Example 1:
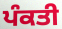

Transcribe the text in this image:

ਪੰਕਤੀ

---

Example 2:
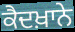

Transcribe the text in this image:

ਕੈਦਖ਼ਾਨੇ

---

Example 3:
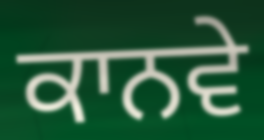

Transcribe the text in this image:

ਕਾਨਵੇ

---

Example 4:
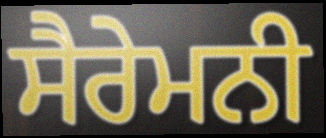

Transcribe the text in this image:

ਸੈਰੇਮਨੀ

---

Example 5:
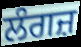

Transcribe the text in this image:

ਲੰਗਜ਼